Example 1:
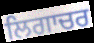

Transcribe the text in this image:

ਲਿਗਾਚਰ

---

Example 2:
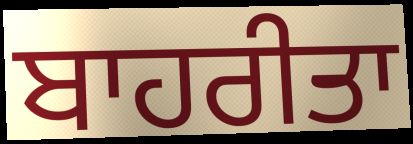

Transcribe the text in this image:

ਬਾਹਰੀਤਾ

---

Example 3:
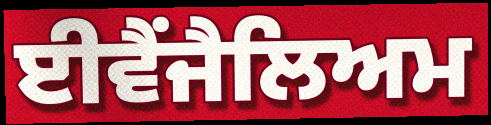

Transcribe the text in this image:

ਈਵੈਂਜੈਲਿਅਮ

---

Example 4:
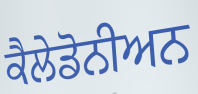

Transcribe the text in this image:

ਕੈਲੇਡੋਨੀਅਨ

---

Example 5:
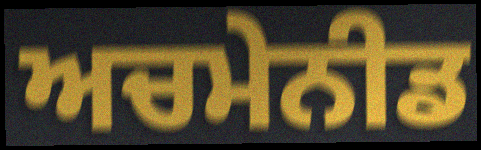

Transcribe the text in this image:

ਅਚਮੇਨੀਡ